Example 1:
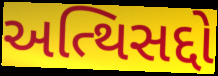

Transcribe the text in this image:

અત્થિસદ્દો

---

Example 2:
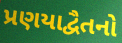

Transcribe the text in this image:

પ્રણયાદ્વૈતનો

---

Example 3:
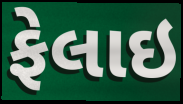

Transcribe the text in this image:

ફેલાઇ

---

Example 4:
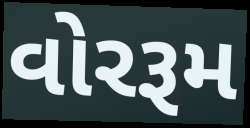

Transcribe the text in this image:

વોરરૂમ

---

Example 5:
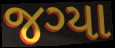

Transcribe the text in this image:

જગ્યા